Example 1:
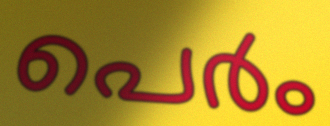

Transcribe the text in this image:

പെർം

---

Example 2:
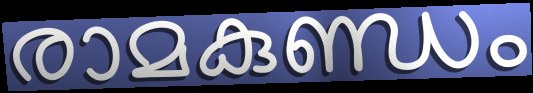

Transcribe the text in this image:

രാമകുണ്ഡം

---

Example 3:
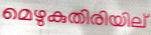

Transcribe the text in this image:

മെഴുകുതിരിയില്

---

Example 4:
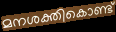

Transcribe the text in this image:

മനശക്തികൊണ്ട്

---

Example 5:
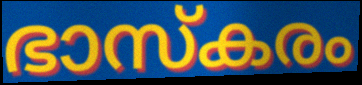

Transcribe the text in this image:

ഭാസ്കരം